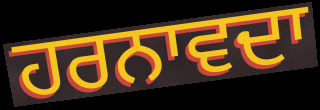
ਹਰਨਾਵਦਾ